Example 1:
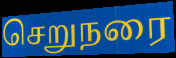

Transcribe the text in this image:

செறுநரை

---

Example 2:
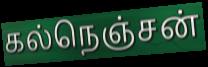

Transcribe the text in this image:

கல்நெஞ்சன்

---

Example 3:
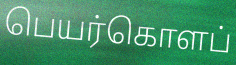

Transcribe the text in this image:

பெயர்கொளப்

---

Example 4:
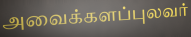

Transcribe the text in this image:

அவைக்களப்புலவர்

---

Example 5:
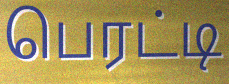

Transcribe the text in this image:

பெரட்டி